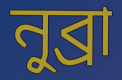
নুব্রা